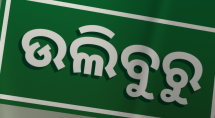
ଉଲିବୁରୁ